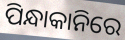
ପିନ୍ଧାକାନିରେ